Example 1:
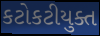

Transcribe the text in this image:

કટોકટીયુક્ત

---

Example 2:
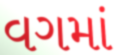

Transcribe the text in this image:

વગમાં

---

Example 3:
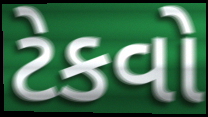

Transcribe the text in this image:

ટેકવો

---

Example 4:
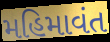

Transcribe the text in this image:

મહિમાવંત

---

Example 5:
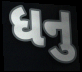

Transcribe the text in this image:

ધનુ